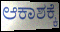
ಆಕಾಶಕ್ಕೆ